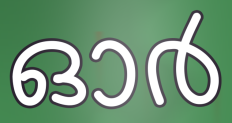
ഓർ